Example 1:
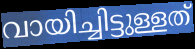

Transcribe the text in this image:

വായിച്ചിട്ടുള്ളത്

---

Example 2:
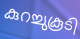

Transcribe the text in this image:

കുറച്ചുകൂടി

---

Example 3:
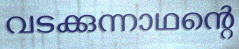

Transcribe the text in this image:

വടക്കുന്നാഥന്റെ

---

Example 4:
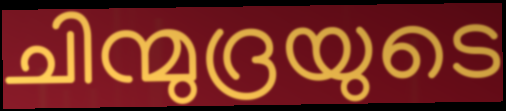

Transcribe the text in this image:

ചിന്മുദ്രയുടെ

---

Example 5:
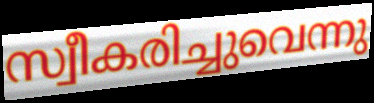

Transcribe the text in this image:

സ്വീകരിച്ചുവെന്നു